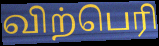
விற்பெரி